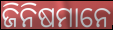
ଜିନିଷମାନେ